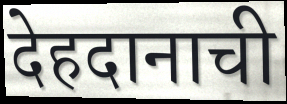
देहदानाची